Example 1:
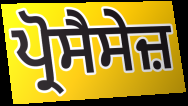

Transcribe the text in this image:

ਪ੍ਰੋਸੈਸੇਜ਼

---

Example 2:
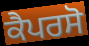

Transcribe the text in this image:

ਕੈਪਰਸੋ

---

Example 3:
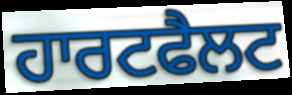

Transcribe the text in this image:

ਹਾਰਟਫੈਲਟ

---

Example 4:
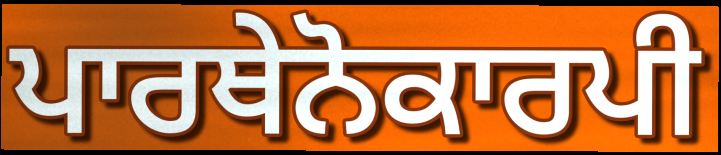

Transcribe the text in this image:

ਪਾਰਥੇਨੋਕਾਰਪੀ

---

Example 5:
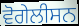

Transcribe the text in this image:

ਵੋਗੇਲੀਸਨ